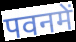
पवनमें